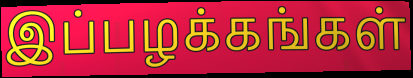
இப்பழக்கங்கள்